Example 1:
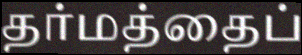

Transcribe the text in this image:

தர்மத்தைப்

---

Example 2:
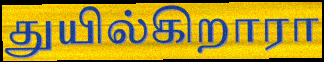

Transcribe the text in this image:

துயில்கிறாரா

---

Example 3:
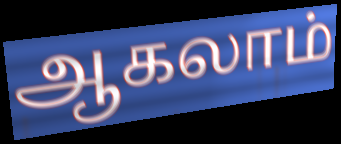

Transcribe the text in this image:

ஆகலாம்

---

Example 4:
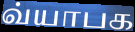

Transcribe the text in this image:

வ்யாபக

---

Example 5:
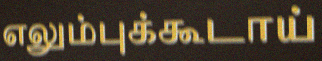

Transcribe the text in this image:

எலும்புக்கூடாய்